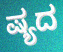
ಷ್ಯದ